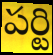
పర్టి